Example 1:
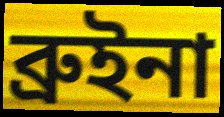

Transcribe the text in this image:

ব্রুইনা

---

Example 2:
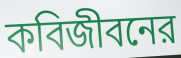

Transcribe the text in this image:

কবিজীবনের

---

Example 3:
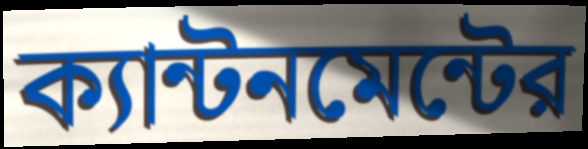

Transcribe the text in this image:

ক্যান্টনমেন্টের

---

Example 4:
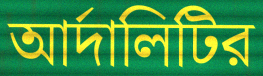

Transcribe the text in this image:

আর্দালিটির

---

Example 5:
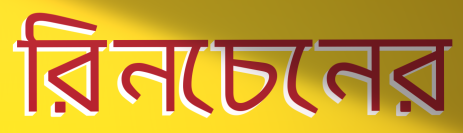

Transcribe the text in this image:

রিনচেনের